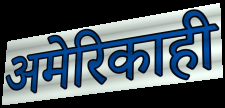
अमेरिकाही